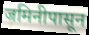
जमिनीपासून